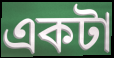
একটা